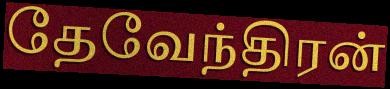
தேவேந்திரன்